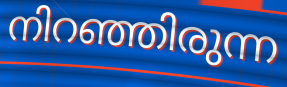
നിറഞ്ഞിരുന്ന